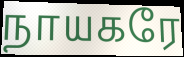
நாயகரே